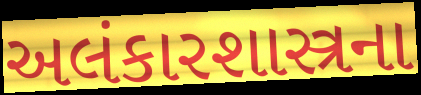
અલંકારશાસ્ત્રના